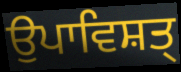
ਉਪਾਵਿਸ਼ਤ੍